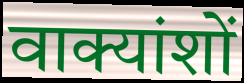
वाक्यांशों